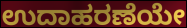
ಉದಾಹರಣೆಯೇ